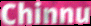
Chinnu